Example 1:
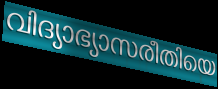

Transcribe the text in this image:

വിദ്യാഭ്യാസരീതിയെ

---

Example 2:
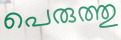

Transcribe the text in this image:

പെരുത്തു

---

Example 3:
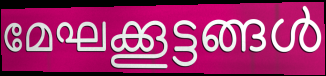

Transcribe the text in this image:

മേഘക്കൂട്ടങ്ങൾ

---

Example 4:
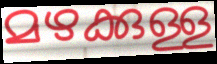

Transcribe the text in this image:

മഴക്കുള്ള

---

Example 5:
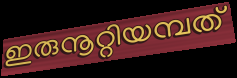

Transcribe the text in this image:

ഇരുനൂറ്റിയമ്പത്